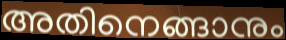
അതിനെങ്ങാനും